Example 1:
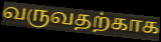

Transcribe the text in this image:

வருவதற்காக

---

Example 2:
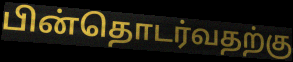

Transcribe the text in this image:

பின்தொடர்வதற்கு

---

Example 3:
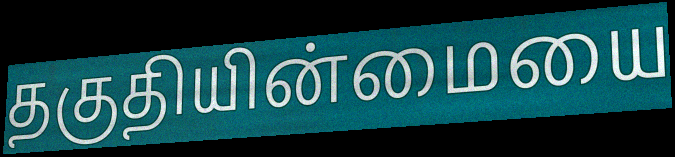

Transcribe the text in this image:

தகுதியின்மையை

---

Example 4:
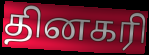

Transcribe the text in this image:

தினகரி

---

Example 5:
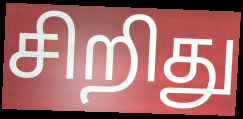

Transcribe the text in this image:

சிறிது